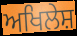
ਅਖਿਲੇਸ਼